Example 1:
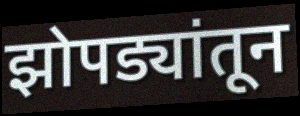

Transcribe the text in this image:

झोपड्यांतून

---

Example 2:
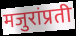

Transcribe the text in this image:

मजुरांप्रती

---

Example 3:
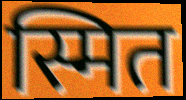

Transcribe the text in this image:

स्मित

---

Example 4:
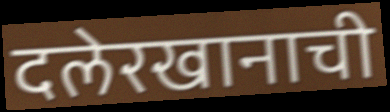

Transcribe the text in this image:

दलेरखानाची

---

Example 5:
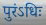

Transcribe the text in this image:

पुरंऽधिः